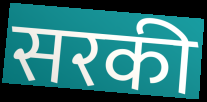
सरकी